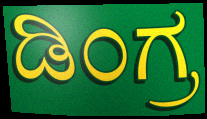
ಡಿಂಗ್ರ